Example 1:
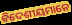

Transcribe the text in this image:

ବିଦେଶୀୟମାନେ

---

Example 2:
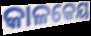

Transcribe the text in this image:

କାଳକେୟ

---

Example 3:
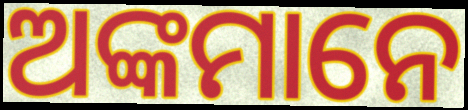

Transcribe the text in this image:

ଅଙ୍କମାନେ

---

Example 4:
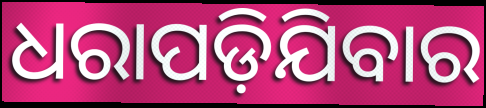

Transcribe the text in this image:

ଧରାପଡ଼ିଯିବାର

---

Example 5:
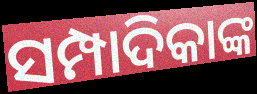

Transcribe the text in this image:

ସମ୍ପାଦିକାଙ୍କ